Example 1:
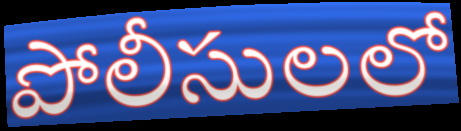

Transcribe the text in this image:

పోలీసులలో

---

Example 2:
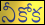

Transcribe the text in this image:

నీకోక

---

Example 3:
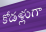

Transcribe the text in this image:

కోడళ్లుగా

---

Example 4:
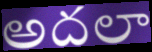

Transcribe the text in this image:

అదలా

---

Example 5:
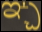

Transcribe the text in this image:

ఞ్చ